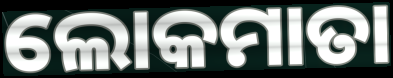
ଲୋକମାତା